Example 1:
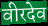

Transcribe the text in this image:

वीरदेव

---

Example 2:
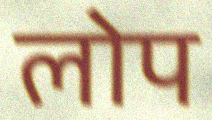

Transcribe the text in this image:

लोप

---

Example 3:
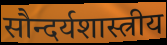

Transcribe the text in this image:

सौन्दर्यशास्त्रीय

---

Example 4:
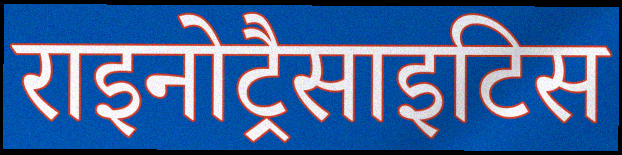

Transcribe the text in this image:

राइनोट्रैसाइटिस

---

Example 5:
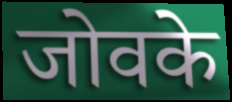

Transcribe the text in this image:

जोवके